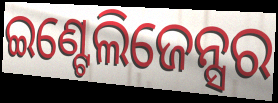
ଇଣ୍ଟେଲିଜେନ୍ସର